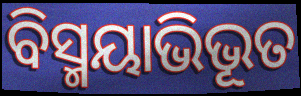
ବିସ୍ମୟାଭିଭୂତ